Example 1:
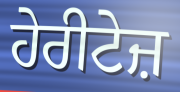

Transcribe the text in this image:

ਹੇਰੀਟੇਜ਼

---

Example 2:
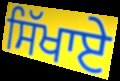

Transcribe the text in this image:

ਸਿੱਖਾਏ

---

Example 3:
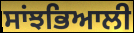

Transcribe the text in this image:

ਸਾਂਝਭਿਆਲੀ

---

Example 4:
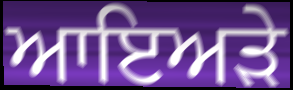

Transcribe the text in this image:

ਆਇਅੜੇ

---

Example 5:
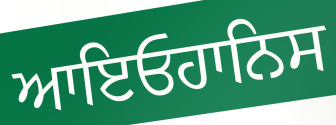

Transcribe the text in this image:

ਆਇਓਹਾਨਿਸ